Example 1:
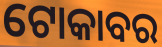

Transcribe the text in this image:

ଟୋକାବର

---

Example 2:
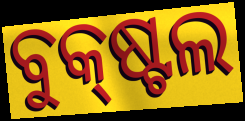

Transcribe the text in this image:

ବୁକ୍‌ଷ୍ଟଲ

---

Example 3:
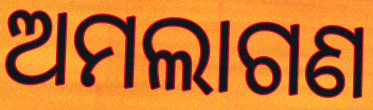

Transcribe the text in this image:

ଅମଲାଗଣ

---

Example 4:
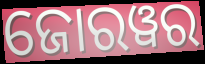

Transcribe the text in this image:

ଜୋରୱର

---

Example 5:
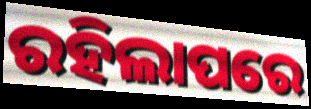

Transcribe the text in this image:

ରହିଲାପରେ